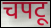
चपटू